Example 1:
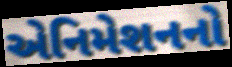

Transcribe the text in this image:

એનિમેશનનો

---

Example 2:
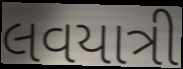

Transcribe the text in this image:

લવયાત્રી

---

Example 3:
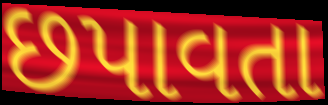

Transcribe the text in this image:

છપાવતા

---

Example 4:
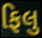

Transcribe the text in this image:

ફિલુ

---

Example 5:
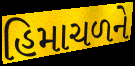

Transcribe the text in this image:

હિમાચળને